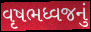
વૃષભધ્વજનું